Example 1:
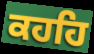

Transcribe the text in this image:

ਕਹਹਿ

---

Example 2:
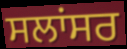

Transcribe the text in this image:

ਸਲਾਂਸਰ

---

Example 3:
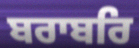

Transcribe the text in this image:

ਬਰਾਬਰਿ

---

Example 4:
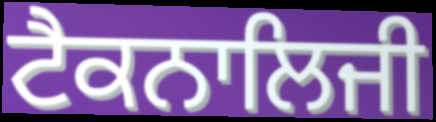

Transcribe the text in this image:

ਟੈਕਨਾਲਿਜੀ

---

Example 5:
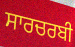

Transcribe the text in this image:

ਸਾਰਚਰਬੀ